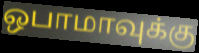
ஒபாமாவுக்கு